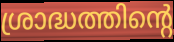
ശ്രാദ്ധത്തിന്റെ